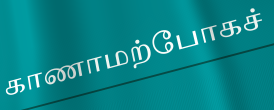
காணாமற்போகச்